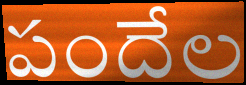
పందేల